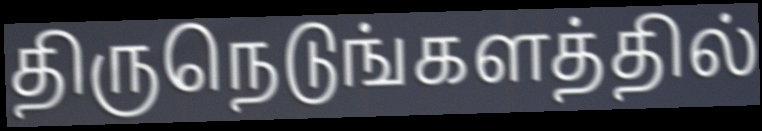
திருநெடுங்களத்தில்